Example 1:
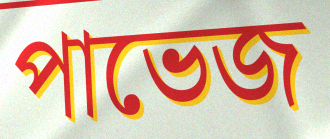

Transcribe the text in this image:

পাভেজ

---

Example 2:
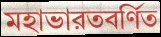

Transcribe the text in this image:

মহাভারতবর্ণিত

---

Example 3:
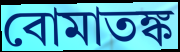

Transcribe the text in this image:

বোমাতঙ্ক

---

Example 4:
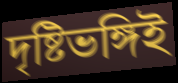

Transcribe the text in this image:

দৃষ্টিভঙ্গিই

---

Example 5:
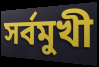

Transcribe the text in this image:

সর্বমুখী